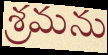
శ్రమను